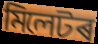
মিলেটৰ